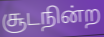
சூடநின்ற